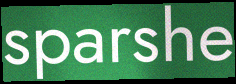
sparshe